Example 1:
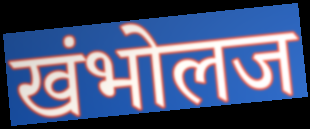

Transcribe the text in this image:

खंभोलज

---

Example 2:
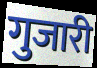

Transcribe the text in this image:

गुजारी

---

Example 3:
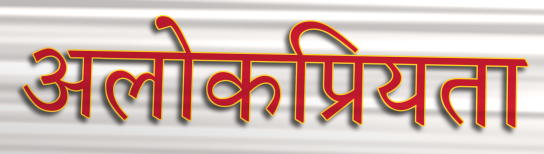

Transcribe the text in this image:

अलोकप्रियता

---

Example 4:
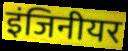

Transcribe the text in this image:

इंजिनीयर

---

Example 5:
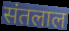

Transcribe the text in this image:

संतलाल